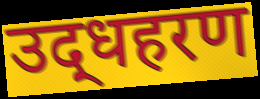
उद्धहरण